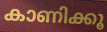
കാണിക്കൂ